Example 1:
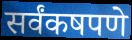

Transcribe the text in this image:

सर्वंकषपणे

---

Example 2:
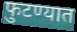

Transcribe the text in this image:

फुटण्यात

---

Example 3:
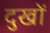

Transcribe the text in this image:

दुखों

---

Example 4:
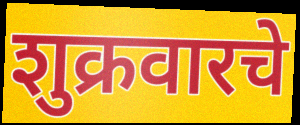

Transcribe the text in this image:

शुक्रवारचे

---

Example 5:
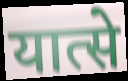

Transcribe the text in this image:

यात्से